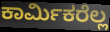
ಕಾರ್ಮಿಕರೆಲ್ಲ